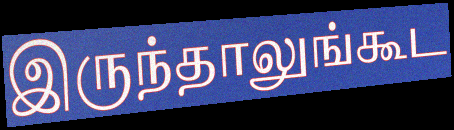
இருந்தாலுங்கூட